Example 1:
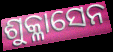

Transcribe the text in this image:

ଶୁକ୍ଳାସେନ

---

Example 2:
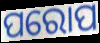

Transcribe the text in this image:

ପରୋପ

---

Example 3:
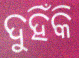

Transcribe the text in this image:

ଦୁହିଁକି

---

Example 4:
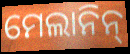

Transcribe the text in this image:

ମେଲାନିନ୍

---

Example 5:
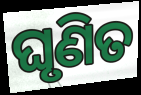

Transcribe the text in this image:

ଘୃଣିତ